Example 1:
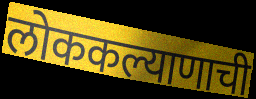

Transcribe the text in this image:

लोककल्याणाची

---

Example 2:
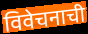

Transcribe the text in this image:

विवेचनाची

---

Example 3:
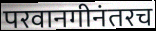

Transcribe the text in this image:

परवानगीनंतरच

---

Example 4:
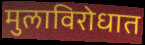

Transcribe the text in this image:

मुलाविरोधात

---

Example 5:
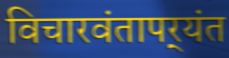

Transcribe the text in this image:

विचारवंतापर्यंत